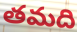
తమది